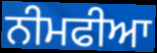
ਨੀਮਫੀਆ